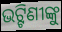
ଭଟ୍ଟିଣୀଙ୍କୁ